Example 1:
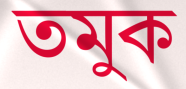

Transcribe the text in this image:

তমুক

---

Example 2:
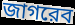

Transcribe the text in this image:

জাগরেব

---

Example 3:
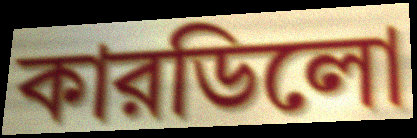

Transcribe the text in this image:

কারডিলো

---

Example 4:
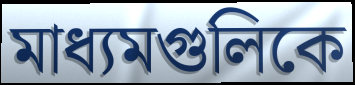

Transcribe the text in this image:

মাধ্যমগুলিকে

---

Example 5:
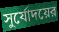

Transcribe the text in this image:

সুর্যোদয়ের